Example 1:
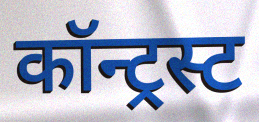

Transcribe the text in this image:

कॉन्ट्रस्ट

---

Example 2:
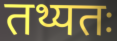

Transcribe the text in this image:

तथ्यतः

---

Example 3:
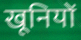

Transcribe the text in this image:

खूनियों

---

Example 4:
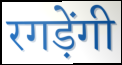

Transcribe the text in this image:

रगड़ेंगी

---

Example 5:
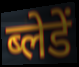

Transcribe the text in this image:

ब्लेडें